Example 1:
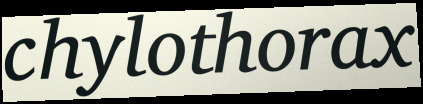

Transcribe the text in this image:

chylothorax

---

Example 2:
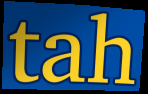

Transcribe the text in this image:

tah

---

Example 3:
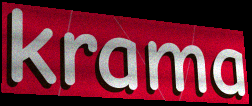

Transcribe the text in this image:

krama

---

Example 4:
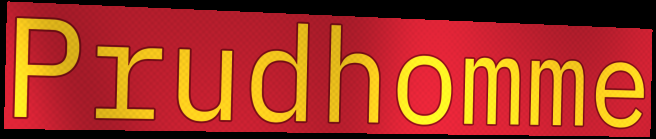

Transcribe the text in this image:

Prudhomme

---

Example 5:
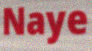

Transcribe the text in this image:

Naye